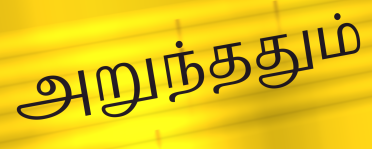
அறுந்ததும்